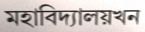
মহাবিদ্যালয়খন